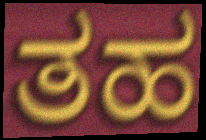
ತಹ